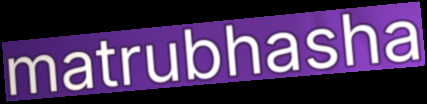
matrubhasha